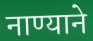
नाण्याने